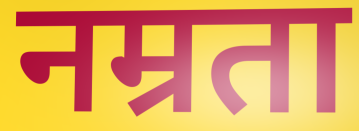
नम्रता